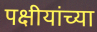
पक्षीयांच्या